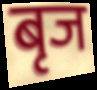
बृज